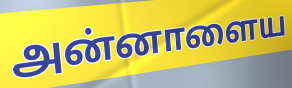
அன்னாளைய